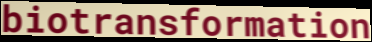
biotransformation